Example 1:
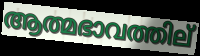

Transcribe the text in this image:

ആത്മഭാവത്തില്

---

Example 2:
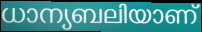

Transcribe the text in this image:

ധാന്യബലിയാണ്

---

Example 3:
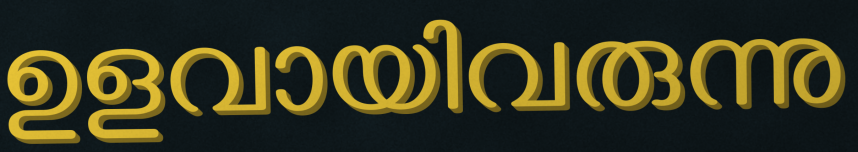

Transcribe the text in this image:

ഉളവായിവരുന്നു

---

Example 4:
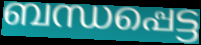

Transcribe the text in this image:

ബന്ധപ്പെട്ട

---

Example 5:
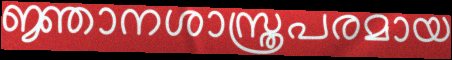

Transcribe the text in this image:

ജ്ഞാനശാസ്ത്രപരമായ